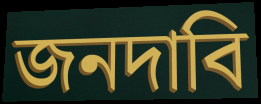
জনদাবি